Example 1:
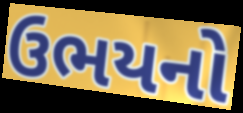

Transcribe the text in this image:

ઉભયનો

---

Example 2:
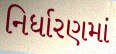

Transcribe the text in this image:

નિર્ધારણમાં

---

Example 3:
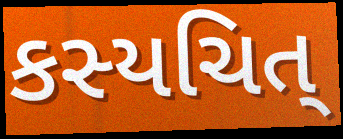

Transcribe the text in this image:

કસ્યચિત્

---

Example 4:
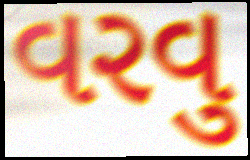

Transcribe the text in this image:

વરવુ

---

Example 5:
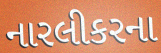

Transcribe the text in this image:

નારલીકરના